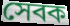
সেবক